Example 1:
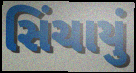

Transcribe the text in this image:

સિંચાયું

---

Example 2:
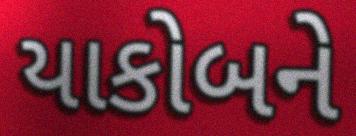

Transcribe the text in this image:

યાકોબને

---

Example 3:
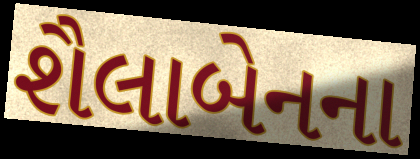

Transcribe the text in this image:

શૈલાબેનના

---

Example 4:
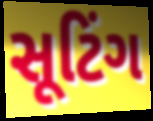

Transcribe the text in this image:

સૂટિંગ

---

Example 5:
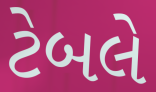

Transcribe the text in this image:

ટેબલે